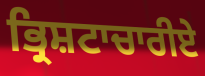
ਭ੍ਰਿਸ਼ਟਾਚਾਰੀਏ